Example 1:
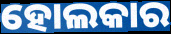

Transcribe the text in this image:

ହୋଲକାର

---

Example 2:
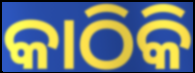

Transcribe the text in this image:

କାଠିକି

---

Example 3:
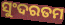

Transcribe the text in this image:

ସୁଂଦରତମ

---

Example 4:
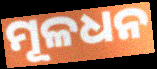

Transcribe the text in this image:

ମୂଳଧନ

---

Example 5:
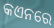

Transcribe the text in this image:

କଏନରେ